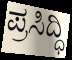
ಪ್ರಸಿದ್ಧಿ